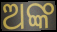
ଅଙ୍କ